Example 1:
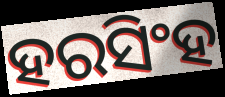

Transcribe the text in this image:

ହରସିଂହ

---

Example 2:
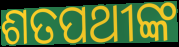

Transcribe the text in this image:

ଶତପଥୀଙ୍କ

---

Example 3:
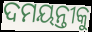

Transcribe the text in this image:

ଦମୟନ୍ତୀକୁ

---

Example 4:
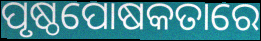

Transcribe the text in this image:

ପୃଷ୍ଠପୋଷକତାରେ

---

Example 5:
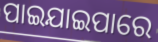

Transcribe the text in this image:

ପାଇଯାଇପାରେ